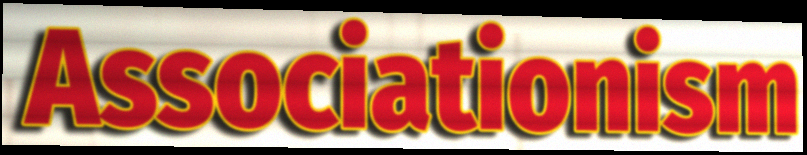
Associationism